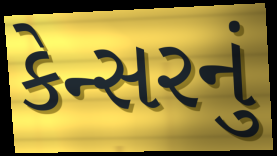
કેન્સરનું